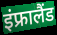
इंफ्रालैंड